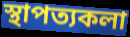
স্থাপত্যকলা